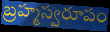
బ్రహ్మస్వరూపం